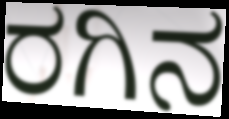
ರಗಿನ